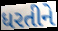
ધરતીને